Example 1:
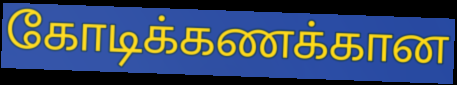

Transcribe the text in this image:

கோடிக்கணக்கான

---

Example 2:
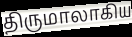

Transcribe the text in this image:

திருமாலாகிய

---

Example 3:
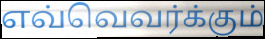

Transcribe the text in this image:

எவ்வெவர்க்கும்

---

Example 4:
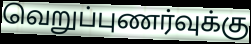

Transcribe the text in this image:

வெறுப்புணர்வுக்கு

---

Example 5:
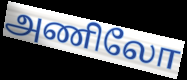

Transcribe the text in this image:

அணிலோ